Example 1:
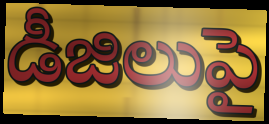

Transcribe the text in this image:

డీజిలుపై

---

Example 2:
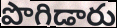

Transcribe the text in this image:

పొగిడారు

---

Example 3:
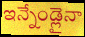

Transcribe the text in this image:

ఇన్నేండ్లైనా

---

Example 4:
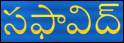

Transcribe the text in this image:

సఫావిద్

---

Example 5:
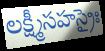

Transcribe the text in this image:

లక్ష్మీసహస్రైః